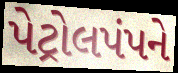
પેટ્રોલપંપને